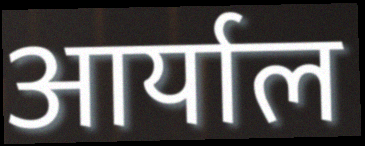
आर्याल